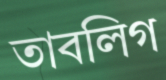
তাবলিগ